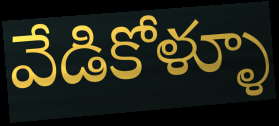
వేడికోళ్ళూ